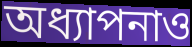
অধ্যাপনাও